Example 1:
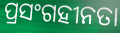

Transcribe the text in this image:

ପ୍ରସଂଗହୀନତା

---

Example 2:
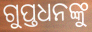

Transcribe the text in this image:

ଗୁପ୍ତଧନଙ୍କୁ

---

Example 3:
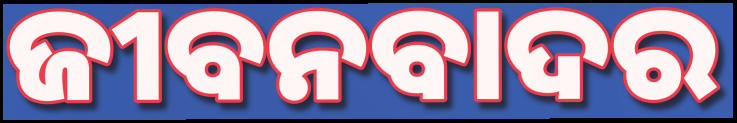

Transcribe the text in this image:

ଜୀବନବାଦର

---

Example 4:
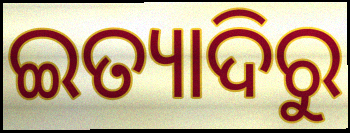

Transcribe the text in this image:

ଇତ୍ୟାଦିରୁ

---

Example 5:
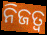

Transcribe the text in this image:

ନିଜତ୍ବ